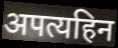
अपत्यहिन